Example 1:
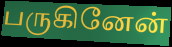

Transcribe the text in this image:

பருகினேன்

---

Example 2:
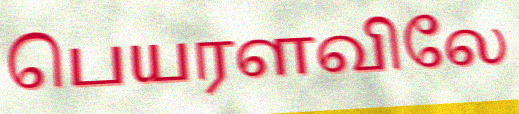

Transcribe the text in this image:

பெயரளவிலே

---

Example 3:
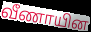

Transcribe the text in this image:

வீணாயின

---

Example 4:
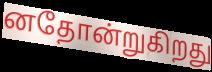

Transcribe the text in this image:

னதோன்றுகிறது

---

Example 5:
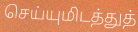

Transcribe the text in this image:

செய்யுமிடத்துத்